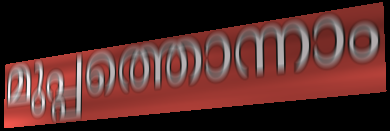
മുപ്പത്തൊന്നാം